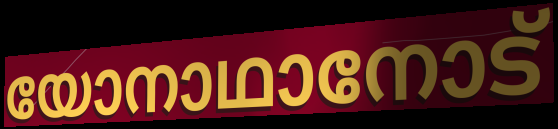
യോനാഥാനോട്